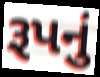
રૂપનું